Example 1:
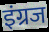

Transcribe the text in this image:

इंग्रज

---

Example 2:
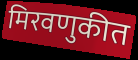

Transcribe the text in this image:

मिरवणुकीत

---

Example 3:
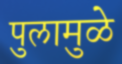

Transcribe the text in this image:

पुलामुळे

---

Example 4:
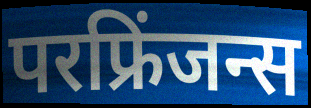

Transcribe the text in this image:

परफ्रिंजन्स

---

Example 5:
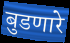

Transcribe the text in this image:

बुडणारे